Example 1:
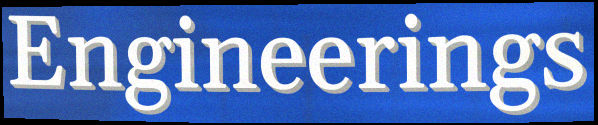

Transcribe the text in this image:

Engineerings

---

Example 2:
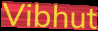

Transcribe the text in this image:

Vibhut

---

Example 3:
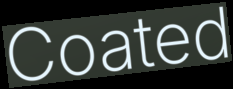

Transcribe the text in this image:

Coated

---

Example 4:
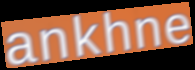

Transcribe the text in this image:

ankhne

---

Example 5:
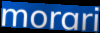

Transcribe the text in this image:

morari